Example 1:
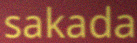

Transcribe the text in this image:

sakada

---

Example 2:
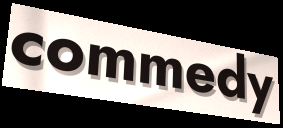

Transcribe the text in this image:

commedy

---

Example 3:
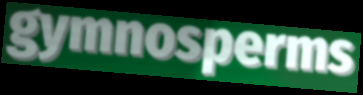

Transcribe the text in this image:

gymnosperms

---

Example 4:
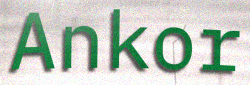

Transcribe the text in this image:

Ankor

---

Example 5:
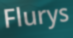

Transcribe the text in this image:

Flurys